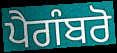
ਪੈਗੰਬਰੋ